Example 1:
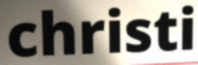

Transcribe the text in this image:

christi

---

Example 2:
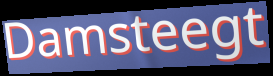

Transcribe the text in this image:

Damsteegt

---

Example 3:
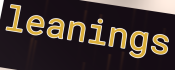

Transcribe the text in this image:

leanings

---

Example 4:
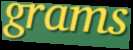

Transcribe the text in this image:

grams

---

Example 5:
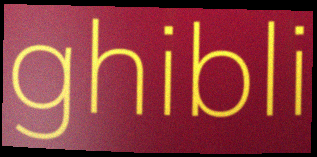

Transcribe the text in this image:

ghibli